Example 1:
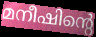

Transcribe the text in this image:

മനീഷിന്റെ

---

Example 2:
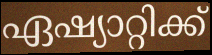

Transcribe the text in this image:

ഏഷ്യാറ്റിക്ക്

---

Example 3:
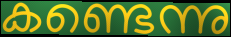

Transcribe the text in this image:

കണ്ടെന്നു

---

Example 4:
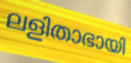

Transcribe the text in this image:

ലളിതാഭായി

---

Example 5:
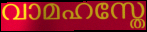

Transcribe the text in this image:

വാമഹസ്തേ